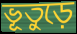
ভূতুড়ে